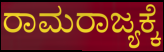
ರಾಮರಾಜ್ಯಕ್ಕೆ